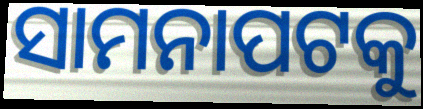
ସାମନାପଟକୁ